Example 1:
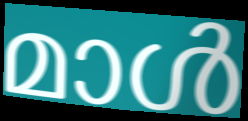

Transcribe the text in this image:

മാൾ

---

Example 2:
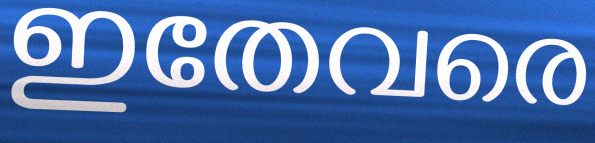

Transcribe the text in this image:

ഇതേവരെ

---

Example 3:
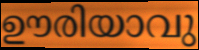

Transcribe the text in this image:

ഊരിയാവു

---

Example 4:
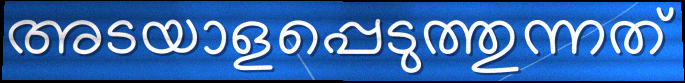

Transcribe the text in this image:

അടയാളപ്പെടുത്തുന്നത്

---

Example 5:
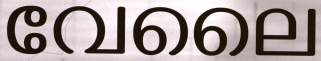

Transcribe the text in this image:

വേലൈ